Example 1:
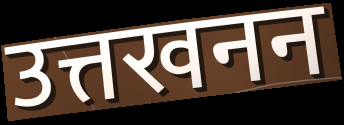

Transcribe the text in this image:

उत्तखनन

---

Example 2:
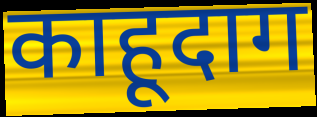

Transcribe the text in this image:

काहूदाग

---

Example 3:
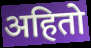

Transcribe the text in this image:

अहितो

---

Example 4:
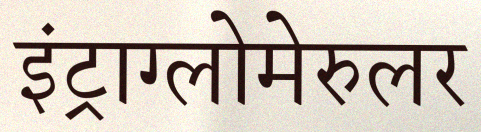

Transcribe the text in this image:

इंट्राग्लोमेरुलर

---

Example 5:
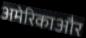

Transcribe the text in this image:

अमेरिकाऔर